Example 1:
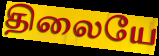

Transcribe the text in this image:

திலையே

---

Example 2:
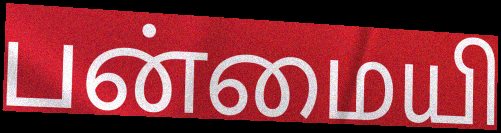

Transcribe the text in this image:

பன்மையி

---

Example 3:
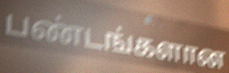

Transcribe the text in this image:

பண்டங்களான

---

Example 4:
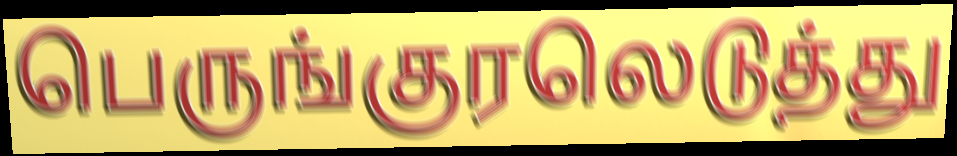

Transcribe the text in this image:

பெருங்குரலெடுத்து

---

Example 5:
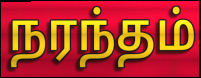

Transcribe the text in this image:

நரந்தம்